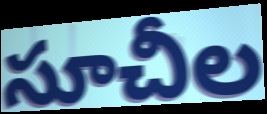
సూచీల